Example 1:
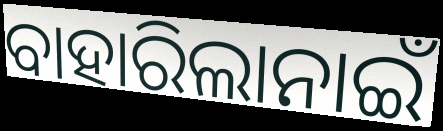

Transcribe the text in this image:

ବାହାରିଲାନାଇଁ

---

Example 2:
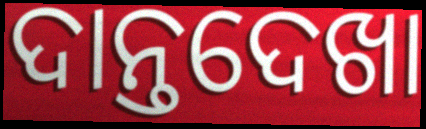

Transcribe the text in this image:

ଦାନ୍ତଦେଖା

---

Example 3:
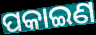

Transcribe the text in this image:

ପକାଇଣ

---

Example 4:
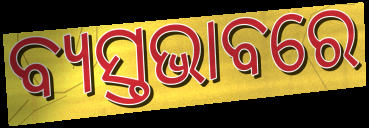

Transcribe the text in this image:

ବ୍ୟସ୍ତଭାବରେ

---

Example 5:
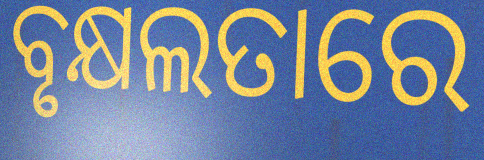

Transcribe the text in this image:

ବୃକ୍ଷଲତାରେ